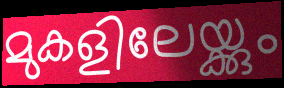
മുകളിലേയ്ക്കും